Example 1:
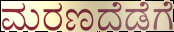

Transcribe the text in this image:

ಮರಣದೆಡೆಗೆ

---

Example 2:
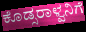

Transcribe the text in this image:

ಕೊಡ್ಸರಾಳ್ವನಿಗೆ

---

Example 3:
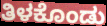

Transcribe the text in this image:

ತಿಳಕೊಂಡು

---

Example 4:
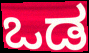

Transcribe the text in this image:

ಒಡ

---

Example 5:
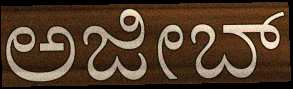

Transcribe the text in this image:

ಅಜೀಬ್